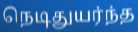
நெடிதுயர்ந்த